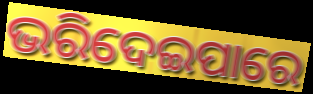
ଭରିଦେଇପାରେ